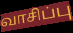
வாசிப்பு